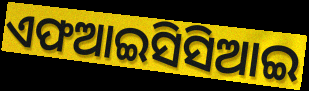
ଏଫଆଇସିସିଆଇ